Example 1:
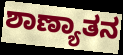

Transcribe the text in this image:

ಶಾಣ್ಯಾತನ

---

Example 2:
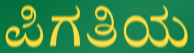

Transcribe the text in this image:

ಪಿಗತಿಯ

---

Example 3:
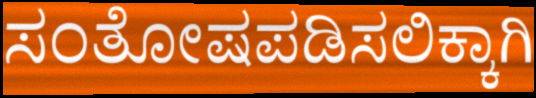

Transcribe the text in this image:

ಸಂತೋಷಪಡಿಸಲಿಕ್ಕಾಗಿ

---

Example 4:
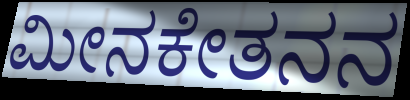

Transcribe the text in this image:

ಮೀನಕೇತನನ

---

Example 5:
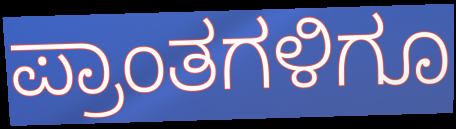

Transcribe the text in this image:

ಪ್ರಾಂತಗಳಿಗೂ